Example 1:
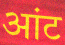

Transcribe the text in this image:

आंट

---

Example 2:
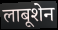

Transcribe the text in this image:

लाबूशेन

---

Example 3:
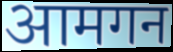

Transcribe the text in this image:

आमगन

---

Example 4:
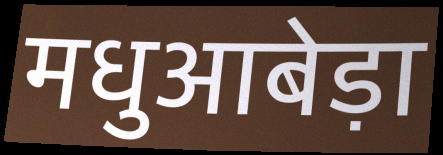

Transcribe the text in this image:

मधुआबेड़ा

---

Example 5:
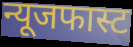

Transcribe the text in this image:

न्यूजफास्ट